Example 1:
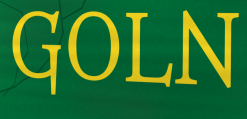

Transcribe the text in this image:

GOLN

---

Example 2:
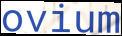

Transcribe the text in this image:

ovium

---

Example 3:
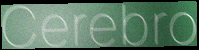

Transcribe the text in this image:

Cerebro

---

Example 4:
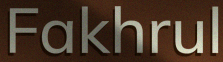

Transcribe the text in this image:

Fakhrul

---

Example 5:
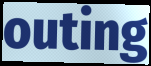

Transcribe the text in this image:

outing